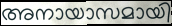
അനായാസമായി